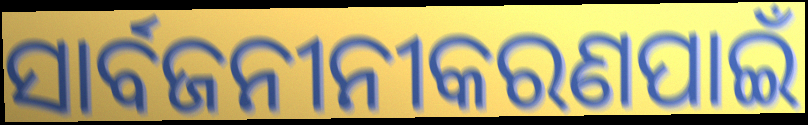
ସାର୍ବଜନୀନୀକରଣପାଇଁ